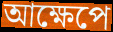
আক্ষেপে